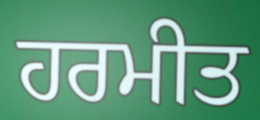
ਹਰਮੀਤ